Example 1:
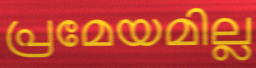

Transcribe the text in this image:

പ്രമേയമില്ല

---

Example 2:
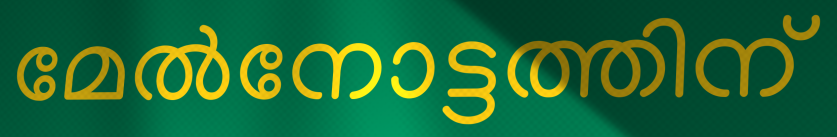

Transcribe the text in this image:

മേൽനോട്ടത്തിന്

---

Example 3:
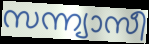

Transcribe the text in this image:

സന്ന്യാസീ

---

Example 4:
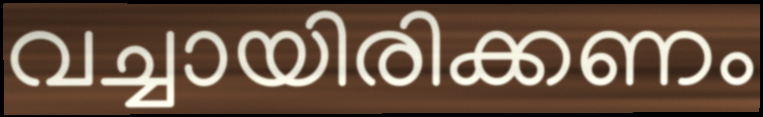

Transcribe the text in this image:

വച്ചായിരിക്കണം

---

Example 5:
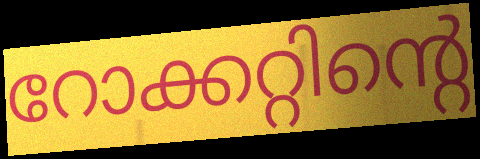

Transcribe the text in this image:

റോക്കറ്റിന്റെ